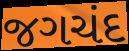
જગચંદ